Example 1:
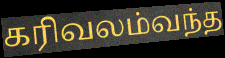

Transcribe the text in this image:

கரிவலம்வந்த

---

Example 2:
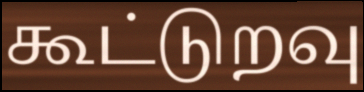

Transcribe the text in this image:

கூட்டுறவு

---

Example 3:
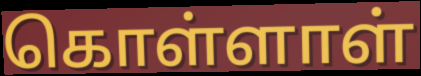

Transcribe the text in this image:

கொள்ளாள்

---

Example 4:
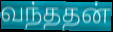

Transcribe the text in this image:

வந்ததன்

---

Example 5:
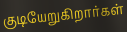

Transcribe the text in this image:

குடியேறுகிறார்கள்